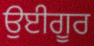
ਉਈਗੂਰ